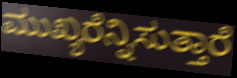
ಮುಖ್ಯರೆನ್ನಿಸುತ್ತಾರೆ